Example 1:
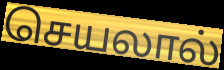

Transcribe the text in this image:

செயலால்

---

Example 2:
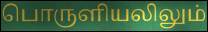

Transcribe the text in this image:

பொருளியலிலும்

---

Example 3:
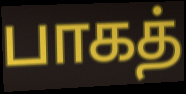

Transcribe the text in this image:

பாகத்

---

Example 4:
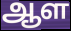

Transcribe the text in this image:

ஆள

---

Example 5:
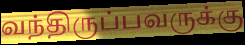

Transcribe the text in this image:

வந்திருப்பவருக்கு